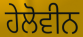
ਹੇਲੋਵੀਨ